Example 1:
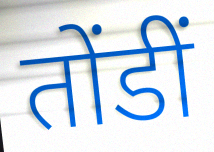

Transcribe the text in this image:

तोंडीं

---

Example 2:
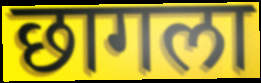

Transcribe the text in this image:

छागला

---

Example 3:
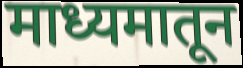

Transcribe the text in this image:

माध्यमातून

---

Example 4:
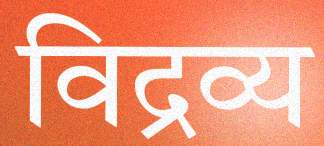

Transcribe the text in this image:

विद्रव्य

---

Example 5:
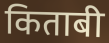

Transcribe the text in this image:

किताबी